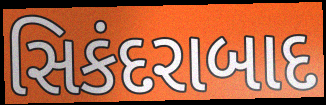
સિકંદરાબાદ